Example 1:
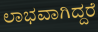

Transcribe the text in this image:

ಲಾಭವಾಗಿದ್ದರೆ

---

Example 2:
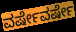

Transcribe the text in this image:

ವರ್ಷೇವರ್ಷೇ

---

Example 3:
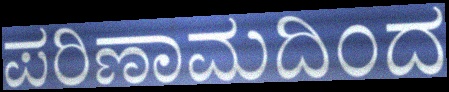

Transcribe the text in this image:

ಪರಿಣಾಮದಿಂದ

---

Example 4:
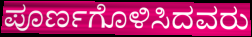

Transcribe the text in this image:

ಪೂರ್ಣಗೊಳಿಸಿದವರು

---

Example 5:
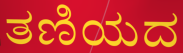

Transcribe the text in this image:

ತಣಿಯದ